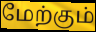
மேற்கும்